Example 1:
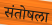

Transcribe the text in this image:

संतोषला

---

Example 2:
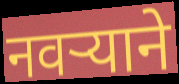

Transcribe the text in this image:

नवर्‍याने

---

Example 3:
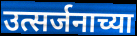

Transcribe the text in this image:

उत्सर्जनाच्या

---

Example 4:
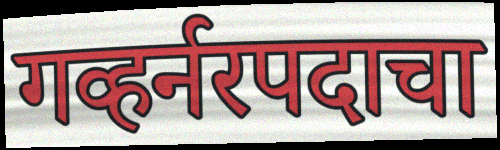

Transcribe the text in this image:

गव्हर्नरपदाचा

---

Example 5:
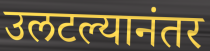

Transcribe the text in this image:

उलटल्यानंतर